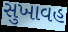
સુખાવહ